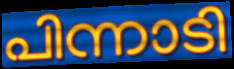
പിന്നാടി